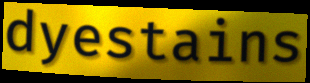
dyestains